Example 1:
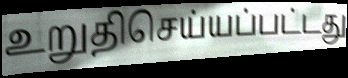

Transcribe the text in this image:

உறுதிசெய்யப்பட்டது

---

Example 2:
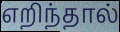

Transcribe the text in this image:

எறிந்தால்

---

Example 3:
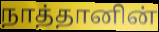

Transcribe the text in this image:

நாத்தானின்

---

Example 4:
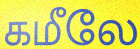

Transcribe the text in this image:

கமீலே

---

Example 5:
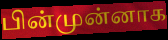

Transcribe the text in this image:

பின்முன்னாக